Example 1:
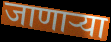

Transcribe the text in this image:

जाणार्‍या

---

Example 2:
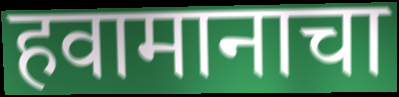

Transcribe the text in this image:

हवामानाचा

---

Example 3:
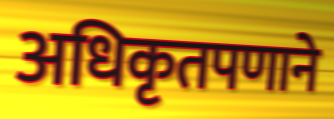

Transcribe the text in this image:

अधिकृतपणाने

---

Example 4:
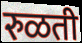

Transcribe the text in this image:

रुळती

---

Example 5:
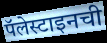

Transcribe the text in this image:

पॅलेस्टाइनची